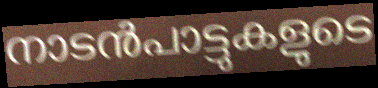
നാടൻപാട്ടുകളുടെ